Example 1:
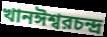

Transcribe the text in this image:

খানঈশ্বরচন্দ্র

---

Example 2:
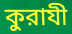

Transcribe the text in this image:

কুরাযী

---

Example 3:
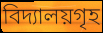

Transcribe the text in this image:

বিদ্যালয়গৃহ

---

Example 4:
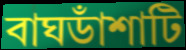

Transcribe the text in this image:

বাঘডাঁশাটি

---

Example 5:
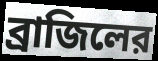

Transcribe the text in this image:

ব্রাজিলের